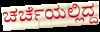
ಚರ್ಚೆಯಲ್ಲಿದ್ದ